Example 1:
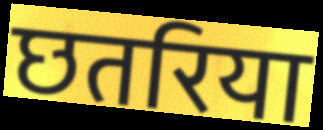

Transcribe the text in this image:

छतरिया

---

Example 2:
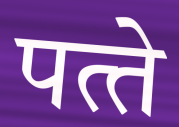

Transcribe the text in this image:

पत्‍ते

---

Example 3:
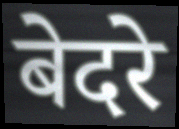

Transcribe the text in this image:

बेदरे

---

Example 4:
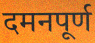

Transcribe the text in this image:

दमनपूर्ण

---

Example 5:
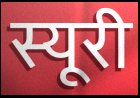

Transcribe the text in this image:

स्यूरी